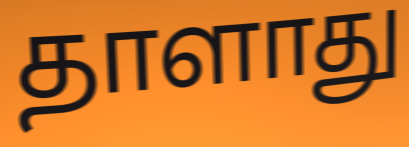
தாளாது